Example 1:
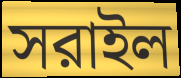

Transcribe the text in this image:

সরাইল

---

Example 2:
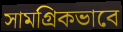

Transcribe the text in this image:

সামগ্রিকভাবে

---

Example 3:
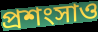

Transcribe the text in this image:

প্রশংসাও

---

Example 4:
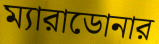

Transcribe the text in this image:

ম্যারাডোনার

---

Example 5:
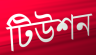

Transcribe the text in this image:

টিউশন